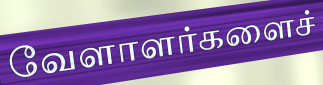
வேளாளர்களைச்